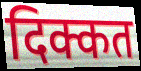
दिक्कत